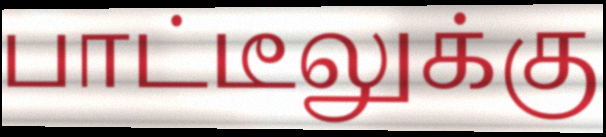
பாட்டீலுக்கு